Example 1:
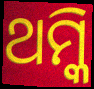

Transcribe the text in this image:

ଥମ୍କି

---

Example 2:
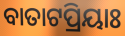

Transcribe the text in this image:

ବାତାଟପ୍ରିୟାଃ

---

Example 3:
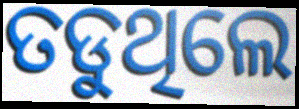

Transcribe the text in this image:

ତଡୁଥିଲେ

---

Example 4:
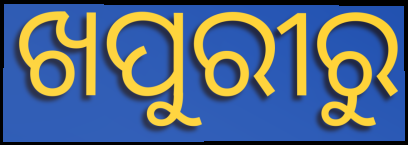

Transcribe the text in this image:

ଖପୁରୀରୁ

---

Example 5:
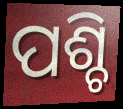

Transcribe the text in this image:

ପଶ୍ଚି